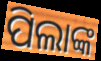
ପିଲାଙ୍କ